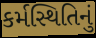
કર્મસ્થિતિનું